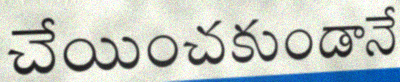
చేయించకుండానే